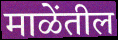
माळेंतील